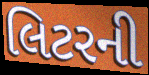
લિટરની